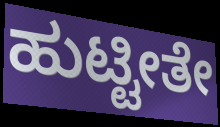
ಹುಟ್ಟೀತೇ